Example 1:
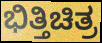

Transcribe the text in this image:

ಭಿತ್ತಿಚಿತ್ರ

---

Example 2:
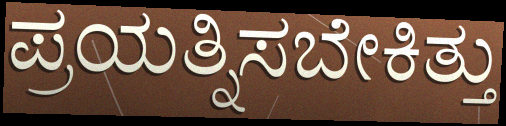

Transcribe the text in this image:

ಪ್ರಯತ್ನಿಸಬೇಕಿತ್ತು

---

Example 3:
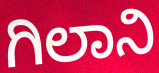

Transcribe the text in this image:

ಗಿಲಾನಿ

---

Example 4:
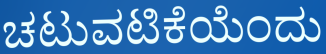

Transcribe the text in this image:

ಚಟುವಟಿಕೆಯೆಂದು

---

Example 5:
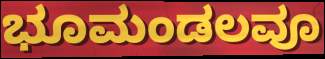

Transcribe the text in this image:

ಭೂಮಂಡಲವೂ